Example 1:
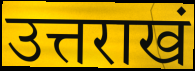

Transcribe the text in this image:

उत्तराखं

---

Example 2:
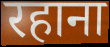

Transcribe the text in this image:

रहाना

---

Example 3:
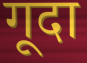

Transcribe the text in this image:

गूदा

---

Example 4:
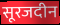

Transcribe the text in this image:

सूरजदीन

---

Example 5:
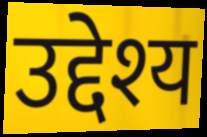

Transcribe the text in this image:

उद्देश्‍य